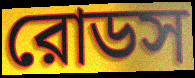
রোডস